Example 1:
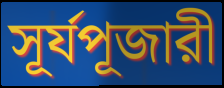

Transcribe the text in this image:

সূর্যপূজারী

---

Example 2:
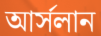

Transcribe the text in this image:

আর্সলান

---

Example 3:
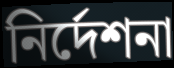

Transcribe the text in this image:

নির্দেশনা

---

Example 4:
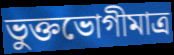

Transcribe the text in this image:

ভুক্তভোগীমাত্র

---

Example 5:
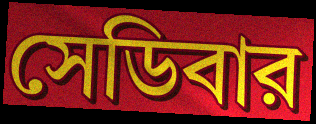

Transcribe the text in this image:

সেডিবার